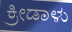
ಕ್ರೀಡಾಳು